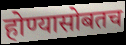
होण्यासोबतच